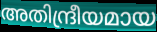
അതിന്ദ്രീയമായ